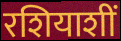
रशियाशीं